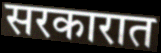
सरकारात